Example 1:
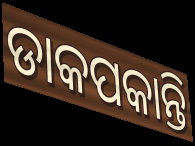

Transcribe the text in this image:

ଡାକପକାନ୍ତି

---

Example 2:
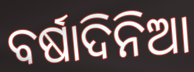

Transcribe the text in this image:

ବର୍ଷାଦିନିଆ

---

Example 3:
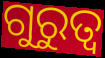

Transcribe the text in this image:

ଗୁରୁତ୍ୱ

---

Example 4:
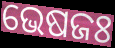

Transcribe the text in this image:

ଭେଷଜଃ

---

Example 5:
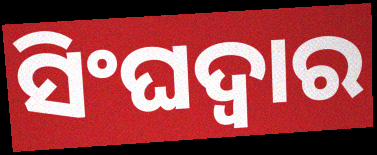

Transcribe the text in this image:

ସିଂଘଦ୍ୱାର